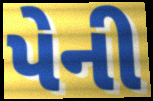
પેની